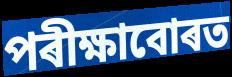
পৰীক্ষাবোৰত